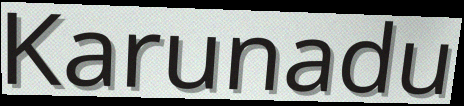
Karunadu